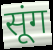
सूंग